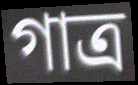
গাত্র